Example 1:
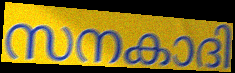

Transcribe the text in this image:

സനകാദി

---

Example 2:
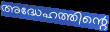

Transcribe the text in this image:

അദ്ധേഹത്തിന്റെ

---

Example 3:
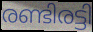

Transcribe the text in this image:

രണ്ടിരട്ടി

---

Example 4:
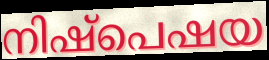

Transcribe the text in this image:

നിഷ്പെഷയ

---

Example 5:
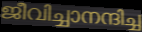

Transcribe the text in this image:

ജീവിച്ചാനന്ദിച്ച